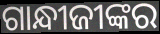
ଗାନ୍ଧୀଜୀଙ୍କର